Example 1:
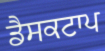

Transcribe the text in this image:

ਡੈਸਕਟਾਪ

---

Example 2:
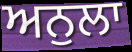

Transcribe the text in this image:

ਅਨੁਲਾ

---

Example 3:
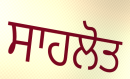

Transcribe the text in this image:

ਸਾਹਲੋਤ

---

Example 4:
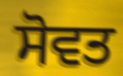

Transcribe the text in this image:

ਸੋਵਤ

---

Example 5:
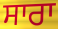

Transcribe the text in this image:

ਸਾਰਾ